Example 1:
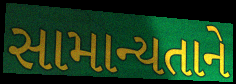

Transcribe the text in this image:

સામાન્યતાને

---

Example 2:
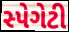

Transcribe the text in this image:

સ્પેગેટી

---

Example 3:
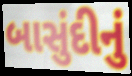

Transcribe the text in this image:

બાસુંદીનું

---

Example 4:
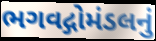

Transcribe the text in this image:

ભગવદ્ગોમંડલનું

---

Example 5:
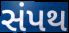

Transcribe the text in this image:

સંપથ